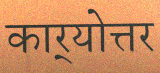
कार्योत्तर